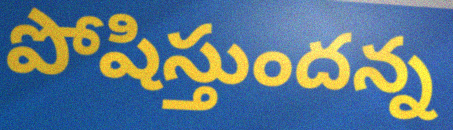
పోషిస్తుందన్న